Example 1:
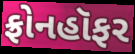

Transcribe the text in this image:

ફ્રોનહૉફર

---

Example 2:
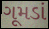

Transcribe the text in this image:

ગૂમડાં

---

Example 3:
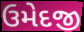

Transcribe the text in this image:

ઉમેદજી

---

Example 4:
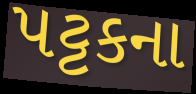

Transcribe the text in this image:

પટ્ટકના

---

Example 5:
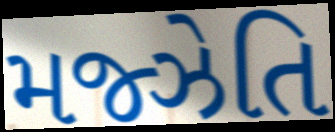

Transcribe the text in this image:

મજ્ઝેતિ